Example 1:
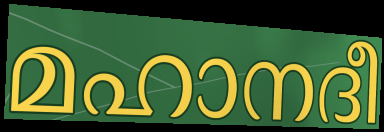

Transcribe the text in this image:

മഹാനദീ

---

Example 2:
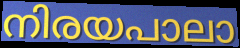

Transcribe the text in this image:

നിരയപാലാ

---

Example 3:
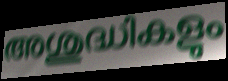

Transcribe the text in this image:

അശുദ്ധികളും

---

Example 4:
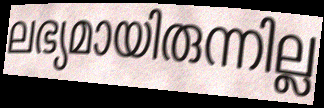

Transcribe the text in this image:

ലഭ്യമായിരുന്നില്ല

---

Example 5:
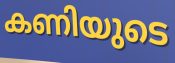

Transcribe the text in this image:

കണിയുടെ